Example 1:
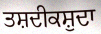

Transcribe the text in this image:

ਤਸ਼ਦੀਕਸ਼ੁਦਾ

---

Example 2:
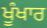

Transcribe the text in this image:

ਖੂੰਖਾਰ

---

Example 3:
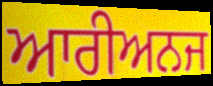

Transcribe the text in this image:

ਆਰੀਅਨਜ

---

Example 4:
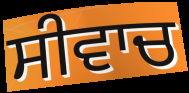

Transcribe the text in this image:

ਸੀਵਾਚ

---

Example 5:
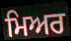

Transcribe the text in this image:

ਮਿਅਰ